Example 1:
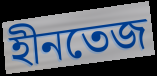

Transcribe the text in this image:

হীনতেজ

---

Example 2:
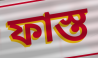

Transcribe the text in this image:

ফাস্ত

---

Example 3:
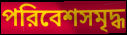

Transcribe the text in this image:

পরিবেশসমৃদ্ধ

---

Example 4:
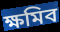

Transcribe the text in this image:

ক্ষমিব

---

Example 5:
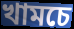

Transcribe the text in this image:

খামচে